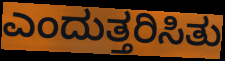
ಎಂದುತ್ತರಿಸಿತು